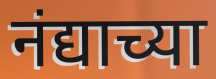
नंद्याच्या